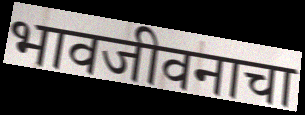
भावजीवनाचा